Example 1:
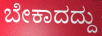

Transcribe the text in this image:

ಬೇಕಾದದ್ದು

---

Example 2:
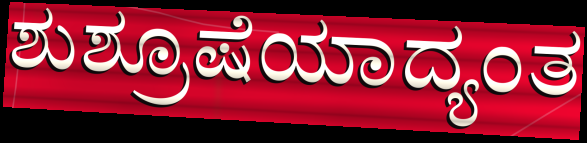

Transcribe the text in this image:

ಶುಶ್ರೂಷೆಯಾದ್ಯಂತ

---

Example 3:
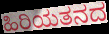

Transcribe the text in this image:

ಹಿರಿಯತನದ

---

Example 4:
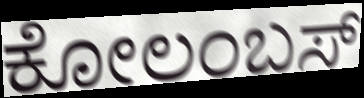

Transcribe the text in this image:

ಕೋಲಂಬಸ್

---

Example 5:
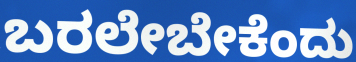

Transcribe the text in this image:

ಬರಲೇಬೇಕೆಂದು